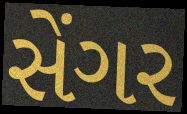
સેંગર